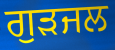
ਗੁੜਜਲ